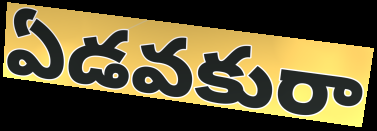
ఏడవకురా